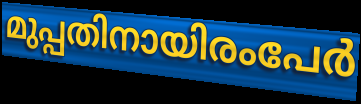
മുപ്പതിനായിരംപേർ